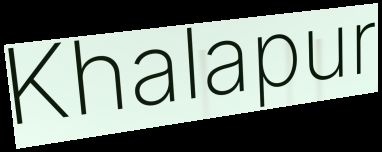
Khalapur